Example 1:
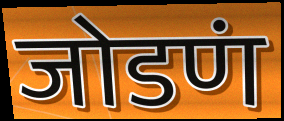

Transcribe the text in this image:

जोडणं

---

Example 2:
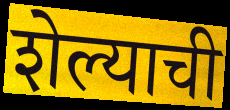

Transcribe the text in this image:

शेल्याची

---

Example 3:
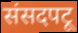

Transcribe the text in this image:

संसदपटू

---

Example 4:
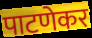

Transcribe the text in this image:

पाटणेकर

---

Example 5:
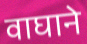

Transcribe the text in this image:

वाघाने